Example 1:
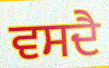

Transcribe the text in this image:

ਵਸਦੈ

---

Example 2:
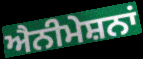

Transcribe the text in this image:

ਐਨੀਮੇਸ਼ਨਾਂ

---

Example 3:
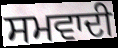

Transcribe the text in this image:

ਸਮਵਾਦੀ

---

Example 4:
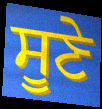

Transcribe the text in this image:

ਸੂਣੇ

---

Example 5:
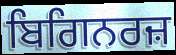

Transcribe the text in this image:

ਬਿਗਿਨਰਜ਼